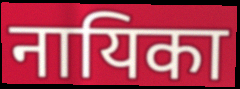
नायिका